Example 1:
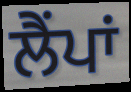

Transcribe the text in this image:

ਲੈਂਪਾਂ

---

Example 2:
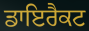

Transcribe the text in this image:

ਡਾਇਰੈਕਟ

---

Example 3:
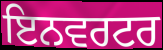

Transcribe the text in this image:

ਇਨਵਰਟਰ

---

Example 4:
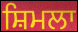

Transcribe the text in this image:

ਸ਼ਿਮਲਾ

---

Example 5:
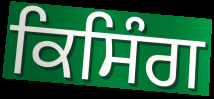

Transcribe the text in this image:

ਕਿਸਿੰਗ